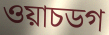
ওয়াচডগ